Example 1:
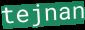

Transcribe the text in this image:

tejnan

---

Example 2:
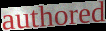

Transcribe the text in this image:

authored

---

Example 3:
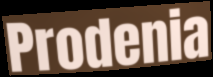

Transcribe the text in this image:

Prodenia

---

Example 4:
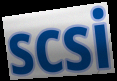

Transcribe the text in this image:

scsi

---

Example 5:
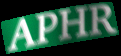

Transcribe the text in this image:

APHR